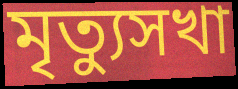
মৃত্যুসখা